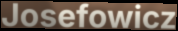
Josefowicz